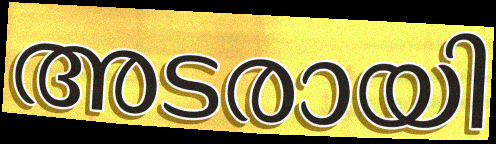
അടരായി